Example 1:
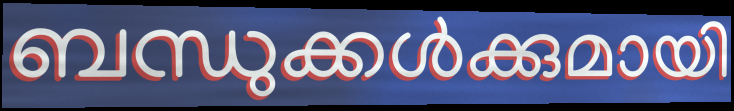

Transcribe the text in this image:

ബന്ധുക്കൾക്കുമായി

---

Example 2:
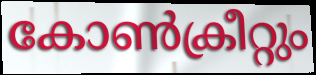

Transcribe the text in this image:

കോൺക്രീറ്റും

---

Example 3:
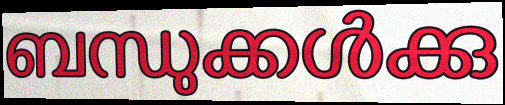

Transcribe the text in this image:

ബന്ധുക്കൾക്കു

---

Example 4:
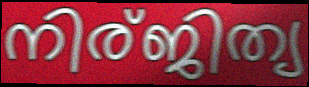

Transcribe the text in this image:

നിര്ജിത്യ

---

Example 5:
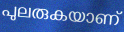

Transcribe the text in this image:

പുലരുകയാണ്